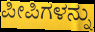
ಪೀಪಿಗಳನ್ನು